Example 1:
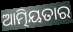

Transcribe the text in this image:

ଆତ୍ମିୟତାର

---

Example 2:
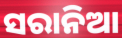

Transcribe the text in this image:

ସରାନିଆ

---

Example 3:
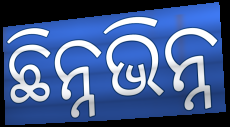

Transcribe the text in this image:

ଛିନ୍ନଭିନ୍ନ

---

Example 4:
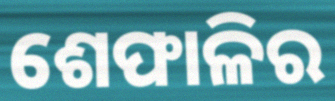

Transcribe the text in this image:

ଶେଫାଳିର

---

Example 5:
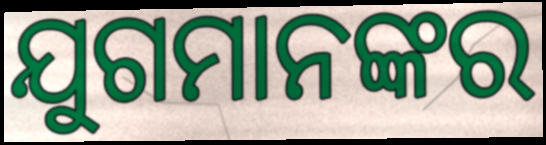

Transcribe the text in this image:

ଯୁଗମାନଙ୍କର